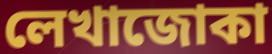
লেখাজোকা